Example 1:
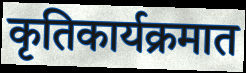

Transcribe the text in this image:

कृतिकार्यक्रमात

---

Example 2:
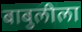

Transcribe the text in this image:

बाबुलीला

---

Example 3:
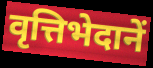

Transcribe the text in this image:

वृत्तिभेदानें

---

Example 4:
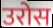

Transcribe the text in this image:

उरोस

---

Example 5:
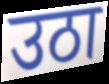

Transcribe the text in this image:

उठा